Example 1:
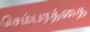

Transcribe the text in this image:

செம்பரத்தை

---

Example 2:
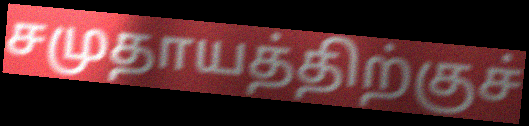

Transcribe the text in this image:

சமுதாயத்திற்குச்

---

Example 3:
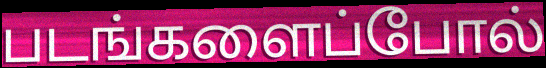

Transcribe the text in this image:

படங்களைப்போல்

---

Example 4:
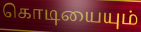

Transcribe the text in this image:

கொடியையும்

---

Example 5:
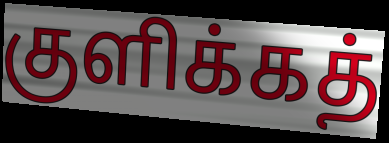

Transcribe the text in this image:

குளிக்கத்